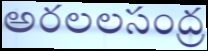
అరలలసంద్ర